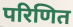
परिणित